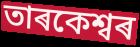
তাৰকেশ্বৰ